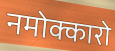
नमोक्कारो